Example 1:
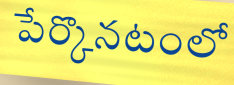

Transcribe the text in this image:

పేర్కొనటంలో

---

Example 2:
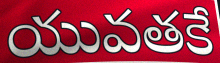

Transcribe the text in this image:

యువతకే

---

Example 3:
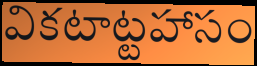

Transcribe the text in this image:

వికటాట్టహాసం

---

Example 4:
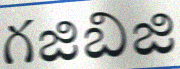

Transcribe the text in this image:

గజిబిజి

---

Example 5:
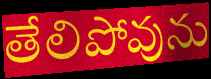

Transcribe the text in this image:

తేలిపోవును